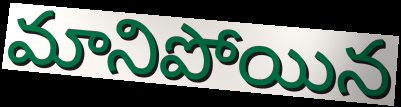
మానిపోయిన